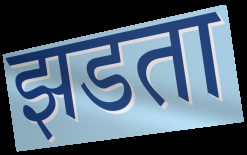
झडता